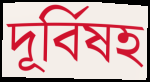
দূর্বিষহ